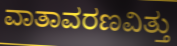
ವಾತಾವರಣವಿತ್ತು